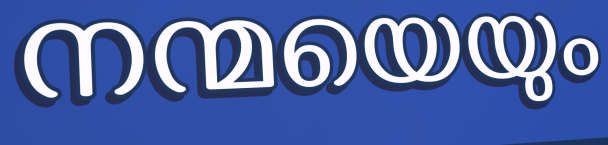
നന്മയെയും